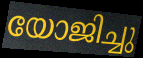
യോജിച്ചു